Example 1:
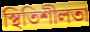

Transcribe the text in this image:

স্থিতিশীলতা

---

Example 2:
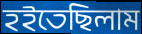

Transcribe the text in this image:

হইতেছিলাম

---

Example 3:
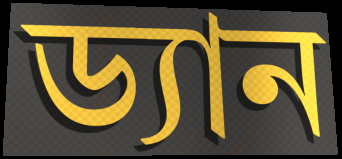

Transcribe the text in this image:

ড্যান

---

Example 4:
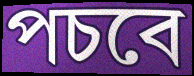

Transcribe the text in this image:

পচবে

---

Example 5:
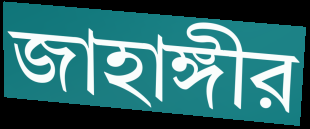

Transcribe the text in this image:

জাহাঙ্গীর